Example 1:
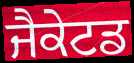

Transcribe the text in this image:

ਜੈਕੇਟਡ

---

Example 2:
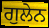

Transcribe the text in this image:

ਗੁਲੇਨ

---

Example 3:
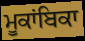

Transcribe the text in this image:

ਮੂਕਾਂਬਿਕਾ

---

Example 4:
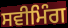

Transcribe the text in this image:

ਸਵੀਮਿੰਗ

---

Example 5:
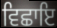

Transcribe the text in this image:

ਵਿਛਾਇ